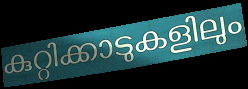
കുറ്റിക്കാടുകളിലും